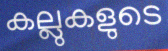
കല്ലുകളുടെ